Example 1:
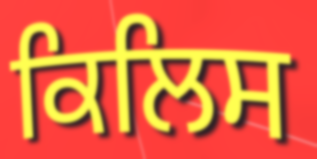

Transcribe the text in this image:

ਕਿਲਿਸ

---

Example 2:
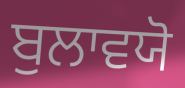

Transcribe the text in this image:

ਬੁਲਾਵਯੋ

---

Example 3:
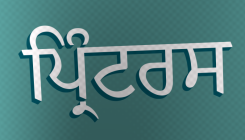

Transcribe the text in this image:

ਪ੍ਰਿੰਟਰਸ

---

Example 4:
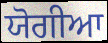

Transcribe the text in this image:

ਯੋਗੀਆ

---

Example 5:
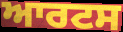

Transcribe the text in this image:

ਆਰਟਸ